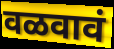
वळवावं